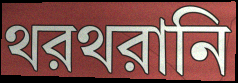
থরথরানি